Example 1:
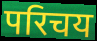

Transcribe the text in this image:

परिचय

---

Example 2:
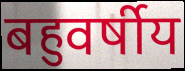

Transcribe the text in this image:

बहुवर्षीय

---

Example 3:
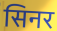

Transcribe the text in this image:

सिनर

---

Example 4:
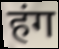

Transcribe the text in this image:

हंग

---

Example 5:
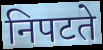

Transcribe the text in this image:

निपटते